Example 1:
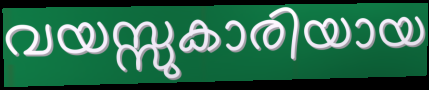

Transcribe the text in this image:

വയസ്സുകാരിയായ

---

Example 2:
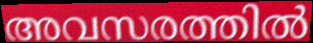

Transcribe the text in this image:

അവസരത്തിൽ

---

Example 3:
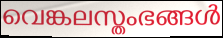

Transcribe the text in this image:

വെങ്കലസ്തംഭങ്ങൾ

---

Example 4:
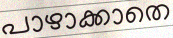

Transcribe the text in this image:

പാഴാക്കാതെ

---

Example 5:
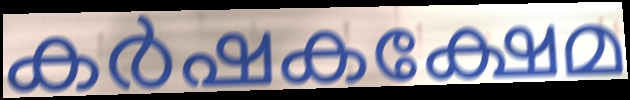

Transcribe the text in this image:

കർഷകക്ഷേമ